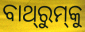
ବାଥ୍‌ରୁମ୍‌କୁ